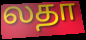
லதா